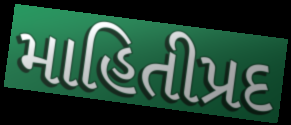
માહિતીપ્રદ